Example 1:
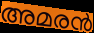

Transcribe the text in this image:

അമരൻ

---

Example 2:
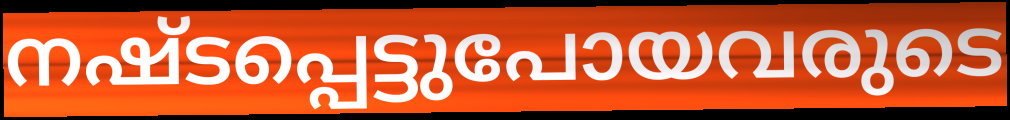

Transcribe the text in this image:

നഷ്ടപ്പെട്ടുപോയവരുടെ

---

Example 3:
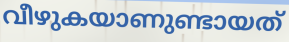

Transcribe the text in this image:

വീഴുകയാണുണ്ടായത്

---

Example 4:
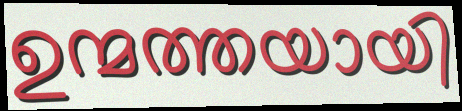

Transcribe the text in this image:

ഉന്മത്തയായി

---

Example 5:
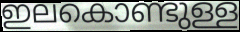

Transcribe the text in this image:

ഇലകൊണ്ടുള്ള